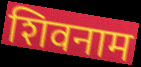
शिवनाम